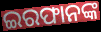
ଇରଫାନଙ୍କ